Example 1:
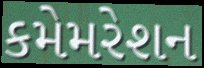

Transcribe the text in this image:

કમેમરેશન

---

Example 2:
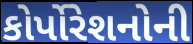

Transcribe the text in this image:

કોર્પોરેશનોની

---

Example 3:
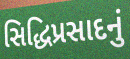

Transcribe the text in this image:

સિદ્ધિપ્રસાદનું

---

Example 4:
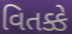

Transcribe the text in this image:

વિતક્કે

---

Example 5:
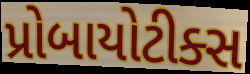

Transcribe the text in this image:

પ્રોબાયોટીક્સ